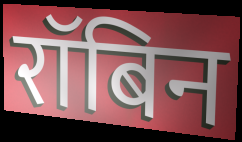
रॉबिन